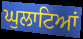
ਘੁਲਾਟਿਆਂ